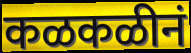
कळकळीनं